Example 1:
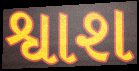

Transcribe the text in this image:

શ્વાશ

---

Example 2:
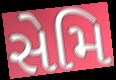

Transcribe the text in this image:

સેમિ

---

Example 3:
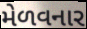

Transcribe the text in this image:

મેળવનાર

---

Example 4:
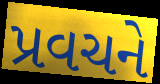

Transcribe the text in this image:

પ્રવચને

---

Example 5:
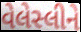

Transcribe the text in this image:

વેલેસ્લીને